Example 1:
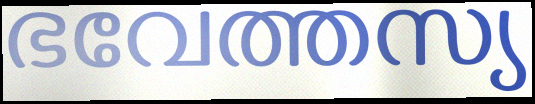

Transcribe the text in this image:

ഭവേത്തസ്യ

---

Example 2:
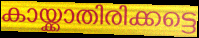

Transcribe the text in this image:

കായ്ക്കാതിരിക്കട്ടെ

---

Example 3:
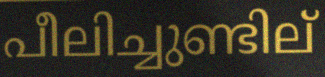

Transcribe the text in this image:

പീലിച്ചുണ്ടില്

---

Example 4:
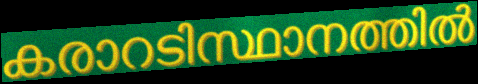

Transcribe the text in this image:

കരാറടിസ്ഥാനത്തിൽ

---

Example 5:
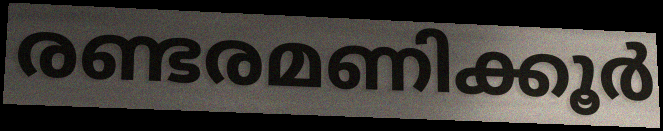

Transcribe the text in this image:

രണ്ടരമണിക്കൂർ